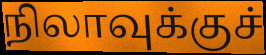
நிலாவுக்குச்